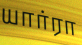
யார்ரா